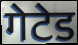
गेटेड